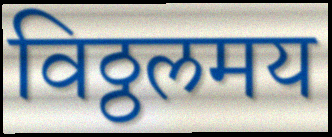
विठ्ठलमय